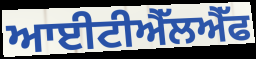
ਆਈਟੀਐੱਲਐੱਫ